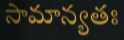
సామాన్యతః